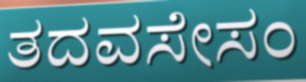
ತದವಸೇಸಂ